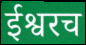
ईश्वरच